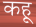
कहू